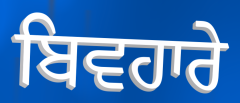
ਬਿਵਹਾਰੇ